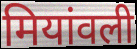
मियांवली